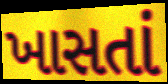
ખાસતાં